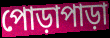
পোড়াপাড়া